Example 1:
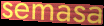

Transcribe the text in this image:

semasa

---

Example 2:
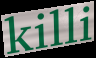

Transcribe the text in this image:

killi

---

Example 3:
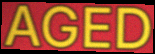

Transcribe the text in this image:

AGED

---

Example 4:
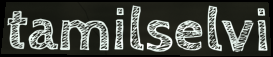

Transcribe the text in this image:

tamilselvi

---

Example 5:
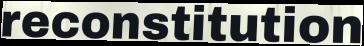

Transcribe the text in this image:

reconstitution